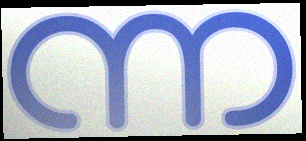
ന്ന